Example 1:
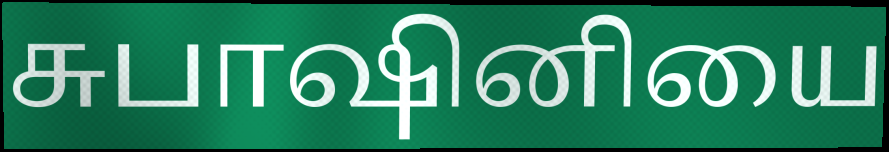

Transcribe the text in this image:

சுபாஷினியை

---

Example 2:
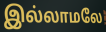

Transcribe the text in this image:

இல்லாமலே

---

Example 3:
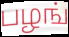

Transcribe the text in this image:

பழங்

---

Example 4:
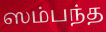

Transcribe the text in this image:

ஸம்பந்த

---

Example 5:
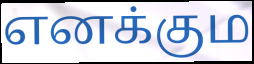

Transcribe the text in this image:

எனக்கும